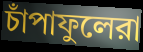
চাঁপাফুলেরা